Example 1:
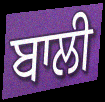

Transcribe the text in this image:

ਬਾਲੀ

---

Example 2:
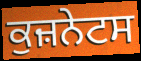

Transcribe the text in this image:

ਕੁਜ਼ਨੇਟਸ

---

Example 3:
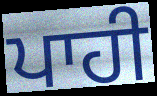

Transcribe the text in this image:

ਪਾਹੀ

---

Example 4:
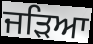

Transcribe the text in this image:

ਜੜਿਆ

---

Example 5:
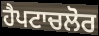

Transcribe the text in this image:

ਹੈਪਟਾਚਲੋਰ